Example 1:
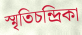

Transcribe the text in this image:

স্মৃতিচন্দ্রিকা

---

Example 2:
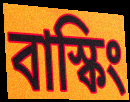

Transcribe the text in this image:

বাস্কিং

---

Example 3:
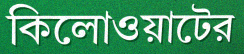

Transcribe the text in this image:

কিলোওয়াটের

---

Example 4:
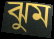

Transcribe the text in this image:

ঝুম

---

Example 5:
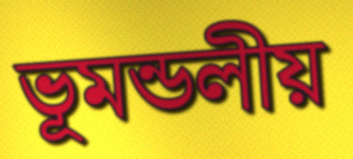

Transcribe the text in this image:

ভূমন্ডলীয়